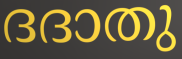
ദദാതു